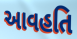
આવહતિ